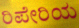
ರಿಪೇರಿಯ